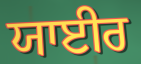
ਯਾਈਰ